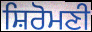
ਸ਼ਿਰੋਮਣੀ